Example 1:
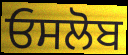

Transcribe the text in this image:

ਓਸਲੋਬ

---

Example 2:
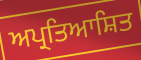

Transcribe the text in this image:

ਅਪ੍ਰਤਿਆਸ਼ਿਤ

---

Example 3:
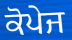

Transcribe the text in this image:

ਕੋਪੇਜ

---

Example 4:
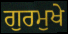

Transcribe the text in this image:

ਗੁਰਮੁਖੇ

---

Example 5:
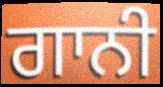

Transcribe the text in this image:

ਗਾਨੀ